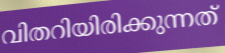
വിതറിയിരിക്കുന്നത്